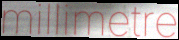
millimetre